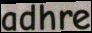
adhre